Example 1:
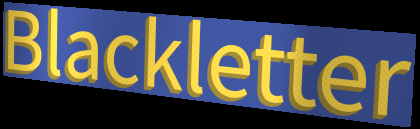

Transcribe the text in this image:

Blackletter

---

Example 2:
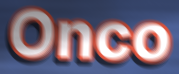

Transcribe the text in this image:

Onco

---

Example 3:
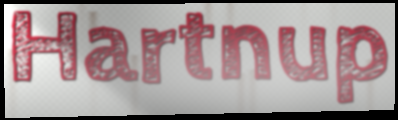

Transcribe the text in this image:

Hartnup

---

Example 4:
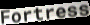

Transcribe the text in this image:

Fortress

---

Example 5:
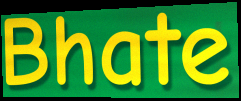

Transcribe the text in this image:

Bhate